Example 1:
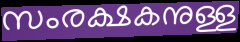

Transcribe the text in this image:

സംരക്ഷകനുള്ള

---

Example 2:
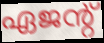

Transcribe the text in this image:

ഏജന്റ്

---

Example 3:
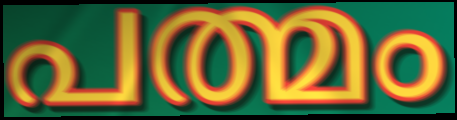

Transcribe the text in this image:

പത്മം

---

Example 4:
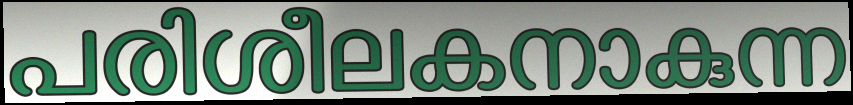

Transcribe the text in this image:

പരിശീലകനാകുന്ന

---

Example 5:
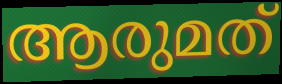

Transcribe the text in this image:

ആരുമത്